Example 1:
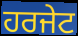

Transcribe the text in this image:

ਹਰਜੇਟ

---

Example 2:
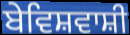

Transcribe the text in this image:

ਬੇਵਿਸ਼ਵਾਸ਼ੀ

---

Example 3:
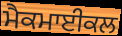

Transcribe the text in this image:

ਮੈਕਮਾਈਕਲ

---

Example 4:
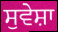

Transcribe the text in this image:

ਸੁਵੇਸ਼ਾ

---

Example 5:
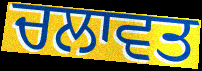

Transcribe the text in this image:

ਚਲਾਵਤ